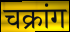
चक्रांग